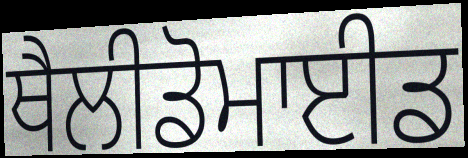
ਥੈਲੀਡੋਮਾਈਡ